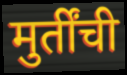
मुर्तींची